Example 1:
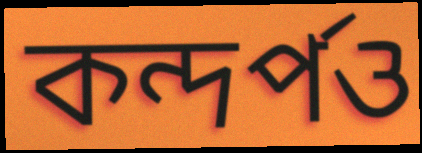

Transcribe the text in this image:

কন্দর্পও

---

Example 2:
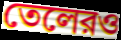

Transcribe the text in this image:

তেলেরও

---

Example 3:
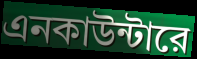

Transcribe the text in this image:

এনকাউন্টারে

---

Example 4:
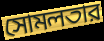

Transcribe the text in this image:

সোমলতার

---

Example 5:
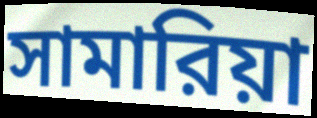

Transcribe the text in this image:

সামারিয়া